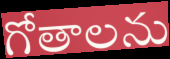
గోతాలను